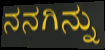
ನನಗಿನ್ನು